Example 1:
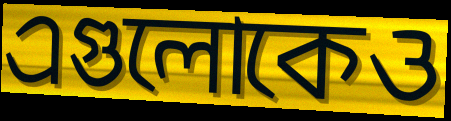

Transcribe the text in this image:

এগুলোকেও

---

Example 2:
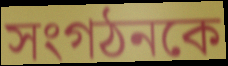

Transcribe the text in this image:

সংগঠনকে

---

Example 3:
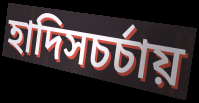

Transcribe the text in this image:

হাদিসচর্চায়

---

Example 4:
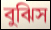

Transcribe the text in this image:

বুঝিস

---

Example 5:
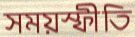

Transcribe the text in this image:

সময়স্ফীতি